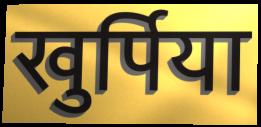
खुर्पिया